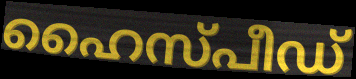
ഹൈസ്പീഡ്